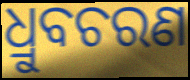
ଧ୍ରୁବଚରଣ